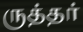
ருத்தர்